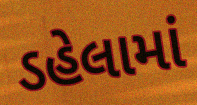
ડહેલામાં